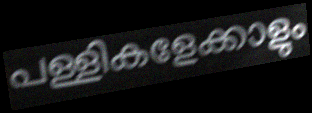
പള്ളികളേക്കാളും